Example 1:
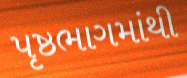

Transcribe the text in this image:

પૃષ્ઠભાગમાંથી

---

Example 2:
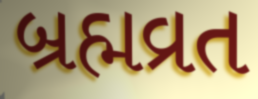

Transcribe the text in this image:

બ્રહ્મવ્રત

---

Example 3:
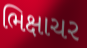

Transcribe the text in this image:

ભિક્ષાચર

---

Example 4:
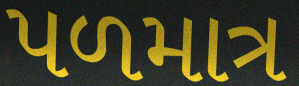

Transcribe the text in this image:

પળમાત્ર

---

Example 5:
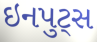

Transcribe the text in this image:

ઇનપુટ્સ